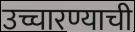
उच्चारण्याची